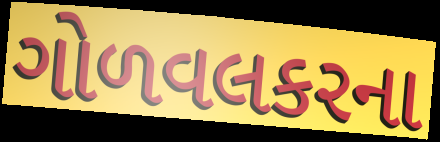
ગોળવલકરના